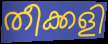
തീക്കളി